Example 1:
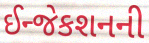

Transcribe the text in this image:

ઈન્જેકશનની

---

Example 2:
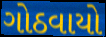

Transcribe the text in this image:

ગોઠવાયો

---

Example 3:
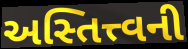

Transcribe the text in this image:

અસ્તિત્ત્વની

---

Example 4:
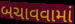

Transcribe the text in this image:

બચાવવામાં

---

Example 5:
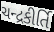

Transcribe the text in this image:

ચન્દ્રકીર્તિ